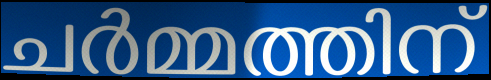
ചർമ്മത്തിന്